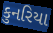
કુનરિયા